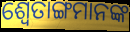
ଶ୍ଵେତାଙ୍ଗମାନଙ୍କ